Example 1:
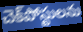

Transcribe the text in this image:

చెక్‌పోస్టులను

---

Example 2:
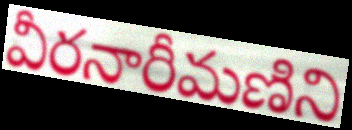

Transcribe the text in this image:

వీరనారీమణిని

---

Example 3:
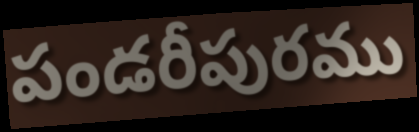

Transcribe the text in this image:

పండరీపురము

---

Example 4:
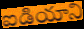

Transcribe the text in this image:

ఐడియాని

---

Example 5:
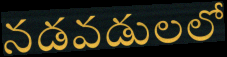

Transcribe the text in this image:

నడవడులలో